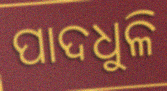
ପାଦଧୁଳି